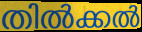
തിൽക്കൽ